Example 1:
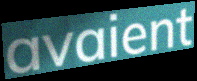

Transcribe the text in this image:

avaient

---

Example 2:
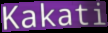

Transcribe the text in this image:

Kakati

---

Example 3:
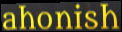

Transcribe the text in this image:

ahonish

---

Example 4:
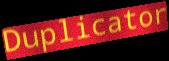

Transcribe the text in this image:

Duplicator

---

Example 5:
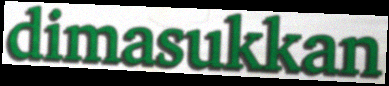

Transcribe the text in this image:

dimasukkan